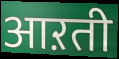
आऱती